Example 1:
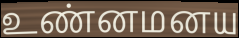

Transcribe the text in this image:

உண்னமனய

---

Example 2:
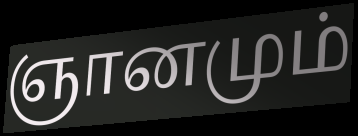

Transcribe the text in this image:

ஞானமும்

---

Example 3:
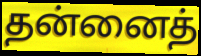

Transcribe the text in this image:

தன்னைத்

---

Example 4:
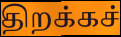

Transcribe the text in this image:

திறக்கச்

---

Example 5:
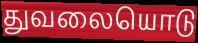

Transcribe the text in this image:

துவலையொடு